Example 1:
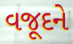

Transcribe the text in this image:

વજૂદને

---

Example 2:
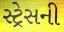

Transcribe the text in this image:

સ્ટ્રેસની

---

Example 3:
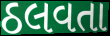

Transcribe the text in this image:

ઠલવતા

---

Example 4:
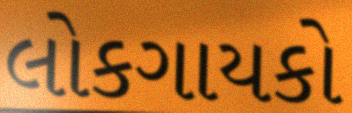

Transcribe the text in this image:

લોકગાયકો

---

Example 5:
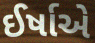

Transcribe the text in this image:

ઈર્ષાએ